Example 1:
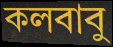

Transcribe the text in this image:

কলবাবু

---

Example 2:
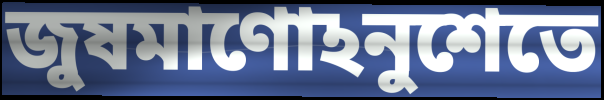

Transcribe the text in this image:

জুষমাণোঽনুশেতে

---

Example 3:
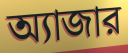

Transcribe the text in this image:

অ্যাজার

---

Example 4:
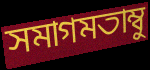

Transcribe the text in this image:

সমাগমতাম্বু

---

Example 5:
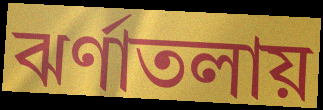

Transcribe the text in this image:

ঝর্ণাতলায়